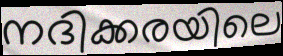
നദിക്കരയിലെ